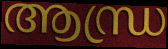
ആന്ധ്ര